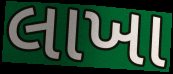
લાખા